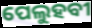
ପେଲୁହବୀ